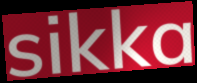
sikka